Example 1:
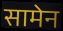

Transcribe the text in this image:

सामेन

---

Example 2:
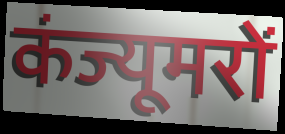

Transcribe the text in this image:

कंज्यूमरों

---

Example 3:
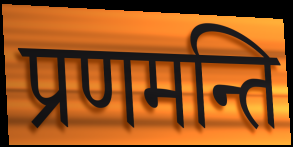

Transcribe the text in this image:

प्रणमन्ति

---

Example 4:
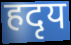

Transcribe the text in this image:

हदृय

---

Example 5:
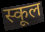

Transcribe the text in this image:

स्‍कूल